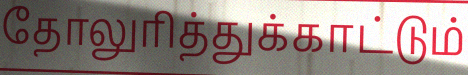
தோலுரித்துக்காட்டும்